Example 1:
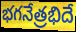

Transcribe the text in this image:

భగనేత్రభిదే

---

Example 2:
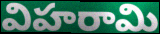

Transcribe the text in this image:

విహరామి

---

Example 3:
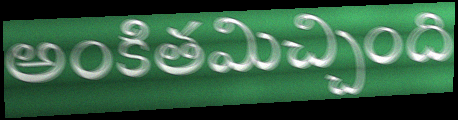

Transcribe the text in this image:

అంకితమిచ్చింది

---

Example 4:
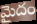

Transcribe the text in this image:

మైదం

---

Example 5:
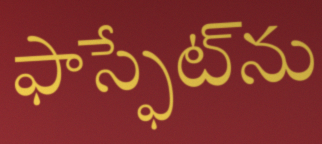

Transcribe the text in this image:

ఫాస్ఫేట్‌ను